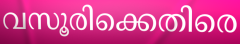
വസൂരിക്കെതിരെ